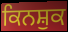
ਕਿਨਸ਼ੁਕ